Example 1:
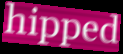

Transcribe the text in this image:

hipped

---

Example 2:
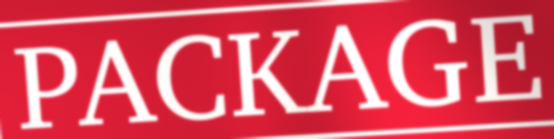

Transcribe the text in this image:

PACKAGE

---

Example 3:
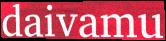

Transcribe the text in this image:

daivamu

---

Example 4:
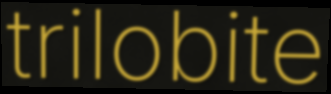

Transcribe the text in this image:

trilobite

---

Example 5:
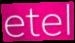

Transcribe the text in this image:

etel